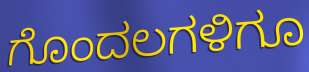
ಗೊಂದಲಗಳಿಗೂ